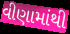
વીણામાંથી